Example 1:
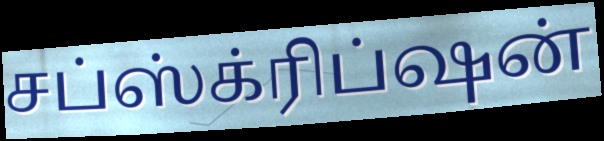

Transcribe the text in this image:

சப்ஸ்க்ரிப்ஷன்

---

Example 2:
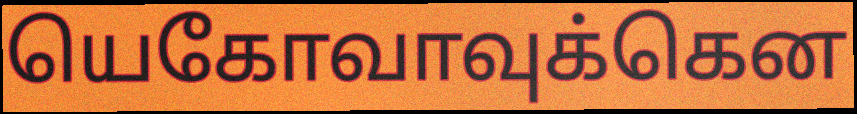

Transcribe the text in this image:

யெகோவாவுக்கென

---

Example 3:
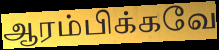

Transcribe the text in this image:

ஆரம்பிக்கவே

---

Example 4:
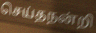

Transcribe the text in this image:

செய்தநன்றி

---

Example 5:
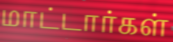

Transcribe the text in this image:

மாட்டார்கள்